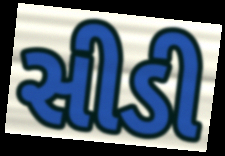
સીડી